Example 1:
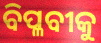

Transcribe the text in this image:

ବିପ୍ଳବୀକୁ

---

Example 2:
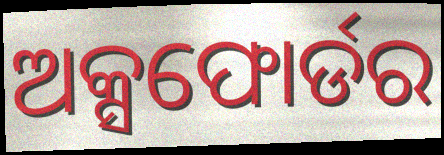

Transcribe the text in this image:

ଅକ୍ସଫୋର୍ଡର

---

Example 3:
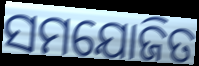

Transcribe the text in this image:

ସମଯୋଜିତ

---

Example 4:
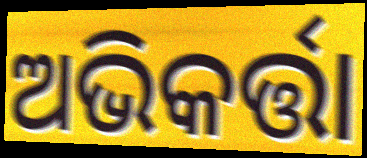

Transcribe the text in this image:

ଅଭିକର୍ତ୍ତା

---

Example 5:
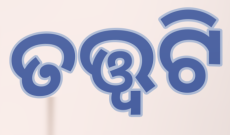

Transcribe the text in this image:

ତତ୍ତ୍ଵଟି